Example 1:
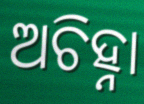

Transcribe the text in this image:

ଅଚିହ୍ନା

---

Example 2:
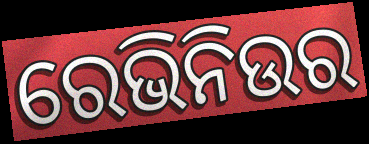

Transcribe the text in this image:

ରେଭିନିଉର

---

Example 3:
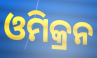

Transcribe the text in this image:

ଓମିକ୍ରନ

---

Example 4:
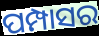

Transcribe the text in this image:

ପମ୍ପାସର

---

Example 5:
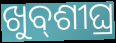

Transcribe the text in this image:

ଖୁବ୍‌ଶୀଘ୍ର